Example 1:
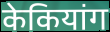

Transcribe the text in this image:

केकियांग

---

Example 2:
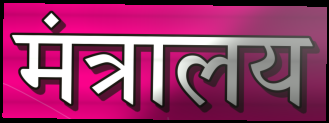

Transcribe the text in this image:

मंत्रालय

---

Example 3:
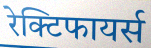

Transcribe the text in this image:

रेक्टिफायर्स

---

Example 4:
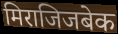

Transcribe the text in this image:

मिराजिजबेक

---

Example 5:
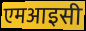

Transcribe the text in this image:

एमआइसी